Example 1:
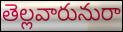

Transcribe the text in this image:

తెల్లవారునురా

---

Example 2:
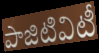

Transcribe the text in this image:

పాజిటివిటీ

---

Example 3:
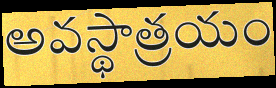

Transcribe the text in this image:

అవస్థాత్రయం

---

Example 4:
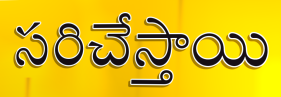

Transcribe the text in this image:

సరిచేస్తాయి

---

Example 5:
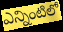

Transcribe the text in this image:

ఎన్నింటిలో